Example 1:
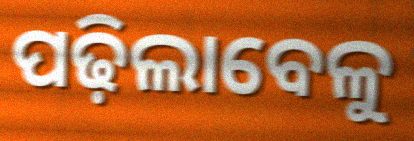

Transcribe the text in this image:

ପଢ଼ିଲାବେଳୁ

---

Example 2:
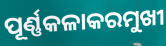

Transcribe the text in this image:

ପୂର୍ଣ୍ଣକଳାକରମୁଖୀ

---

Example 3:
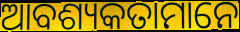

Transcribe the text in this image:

ଆବଶ୍ୟକତାମାନେ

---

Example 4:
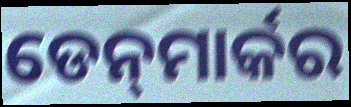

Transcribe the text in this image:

ଡେନ୍‍ମାର୍କର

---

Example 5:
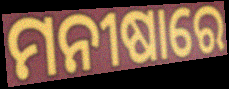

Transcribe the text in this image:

ମନୀଷାରେ